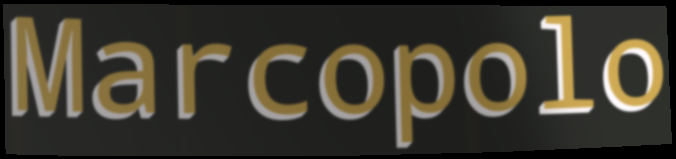
Marcopolo